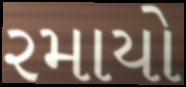
રમાયો